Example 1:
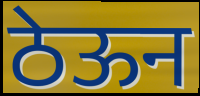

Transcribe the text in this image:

ठेऊन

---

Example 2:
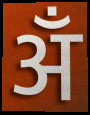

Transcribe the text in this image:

अँ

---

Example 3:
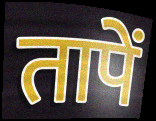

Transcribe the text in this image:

तापें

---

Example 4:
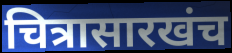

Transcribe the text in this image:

चित्रासारखंच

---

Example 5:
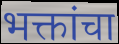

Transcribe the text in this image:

भक्तांचा